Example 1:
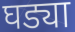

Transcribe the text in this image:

घड्या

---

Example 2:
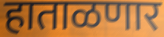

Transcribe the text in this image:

हाताळणार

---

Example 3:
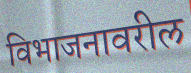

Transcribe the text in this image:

विभाजनावरील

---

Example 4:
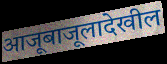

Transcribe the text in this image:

आजूबाजूलादेखील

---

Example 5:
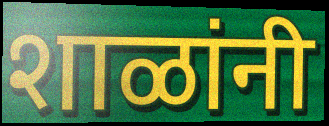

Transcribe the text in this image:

शाळांनी